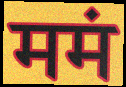
ममं